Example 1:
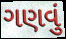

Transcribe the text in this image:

ગણવું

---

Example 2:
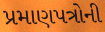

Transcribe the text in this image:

પ્રમાણપત્રોની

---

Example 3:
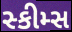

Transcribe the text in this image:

સ્કીમ્સ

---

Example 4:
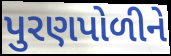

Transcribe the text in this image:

પુરણપોળીને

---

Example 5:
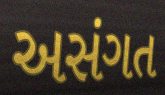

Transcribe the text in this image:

અસંગત